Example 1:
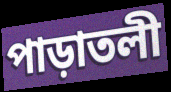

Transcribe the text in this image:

পাড়াতলী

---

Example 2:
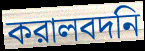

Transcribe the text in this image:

করালবদনি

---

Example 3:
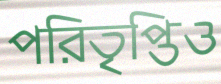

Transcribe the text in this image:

পরিতৃপ্তিও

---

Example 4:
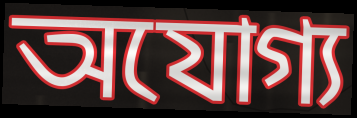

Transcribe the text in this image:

অযোগ্য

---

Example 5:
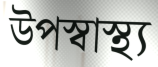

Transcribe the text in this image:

উপস্বাস্থ্য